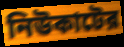
নিউকাটের